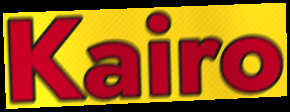
Kairo